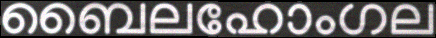
ബൈലഹോംഗല